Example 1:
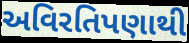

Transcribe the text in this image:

અવિરતિપણાથી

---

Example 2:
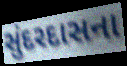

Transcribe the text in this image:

સુંદરદાસના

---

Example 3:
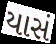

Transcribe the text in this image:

યાસં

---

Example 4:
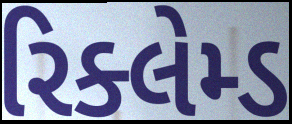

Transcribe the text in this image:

રિક્લેમ્ડ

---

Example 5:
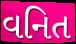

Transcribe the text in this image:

વનિત